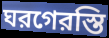
ঘরগেরস্তি